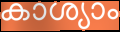
കാശ്യാം